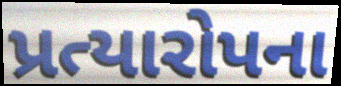
પ્રત્યારોપના